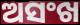
ଅସଂଖ